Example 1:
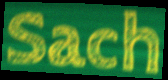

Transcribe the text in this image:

Sach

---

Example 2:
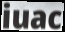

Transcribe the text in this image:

iuac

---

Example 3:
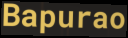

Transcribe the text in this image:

Bapurao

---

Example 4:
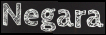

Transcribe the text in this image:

Negara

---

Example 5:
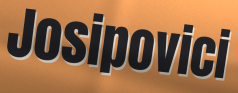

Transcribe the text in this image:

Josipovici